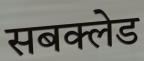
सबक्लेड